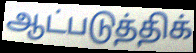
ஆட்படுத்திக்